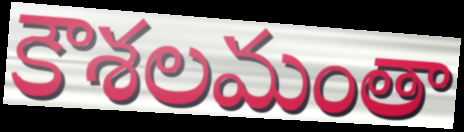
కౌశలమంతా